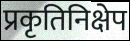
प्रकृतिनिक्षेप